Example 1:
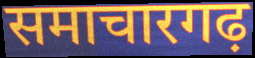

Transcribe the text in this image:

समाचारगढ़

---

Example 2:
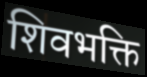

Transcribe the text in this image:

शिवभक्ति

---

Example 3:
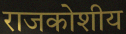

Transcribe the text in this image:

राजकोशीय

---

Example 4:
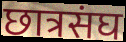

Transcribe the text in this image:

छात्रसंघ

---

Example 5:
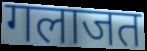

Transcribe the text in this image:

गलाजत